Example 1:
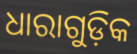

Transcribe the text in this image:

ଧାରାଗୁଡ଼ିକ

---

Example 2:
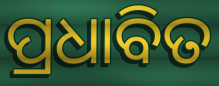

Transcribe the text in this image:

ପ୍ରଧାବିତ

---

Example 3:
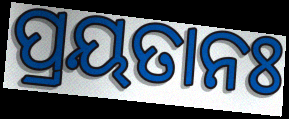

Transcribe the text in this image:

ପ୍ରୟତାନଃ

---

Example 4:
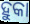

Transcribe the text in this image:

ହୁକା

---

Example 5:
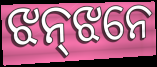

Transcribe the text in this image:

ଝନ୍‌ଝନେ